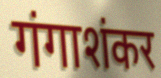
गंगाशंकर